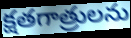
క్షతగాత్రులను